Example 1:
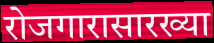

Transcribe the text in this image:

रोजगारासारख्या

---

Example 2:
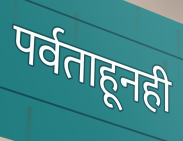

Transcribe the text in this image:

पर्वताहूनही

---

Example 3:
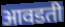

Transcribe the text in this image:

आवडती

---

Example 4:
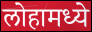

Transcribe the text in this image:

लोहामध्ये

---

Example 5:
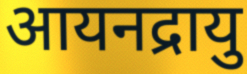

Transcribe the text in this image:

आयनद्रायु